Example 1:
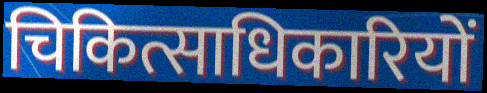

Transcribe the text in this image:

चिकित्साधिकारियों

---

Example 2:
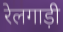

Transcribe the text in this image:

रेलगाड़ी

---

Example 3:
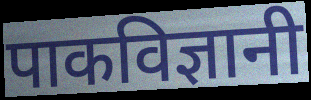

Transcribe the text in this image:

पाकविज्ञानी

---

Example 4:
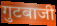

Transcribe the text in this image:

गुटबाजी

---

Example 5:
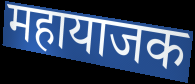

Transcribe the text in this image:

महायाजक